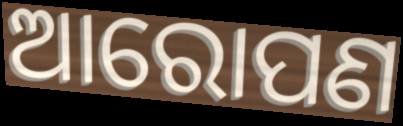
ଆରୋପଣ